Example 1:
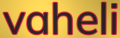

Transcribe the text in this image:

vaheli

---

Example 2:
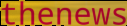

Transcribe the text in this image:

thenews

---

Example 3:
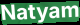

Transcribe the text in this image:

Natyam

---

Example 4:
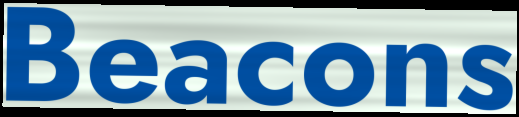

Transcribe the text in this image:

Beacons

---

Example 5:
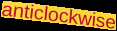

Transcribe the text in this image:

anticlockwise